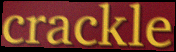
crackle